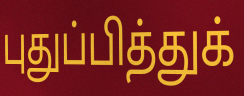
புதுப்பித்துக்